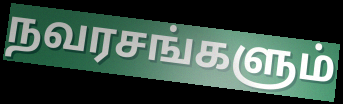
நவரசங்களும்